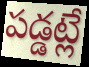
పడ్డట్లే